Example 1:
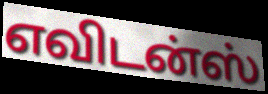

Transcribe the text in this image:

எவிடன்ஸ்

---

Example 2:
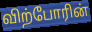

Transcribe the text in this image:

விற்போரின்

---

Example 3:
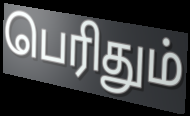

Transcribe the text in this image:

பெரிதும்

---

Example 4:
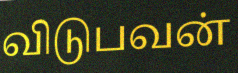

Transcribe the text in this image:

விடுபவன்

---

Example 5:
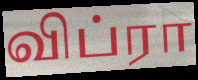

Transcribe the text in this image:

விப்ரா